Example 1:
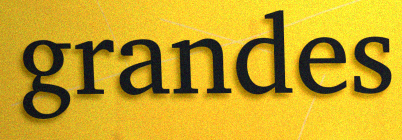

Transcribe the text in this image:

grandes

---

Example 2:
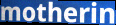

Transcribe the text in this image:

motherin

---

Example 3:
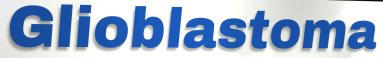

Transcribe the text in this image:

Glioblastoma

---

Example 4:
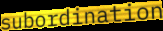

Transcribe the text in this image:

subordination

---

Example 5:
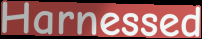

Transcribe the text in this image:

Harnessed